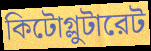
কিটোগ্লুটারেট